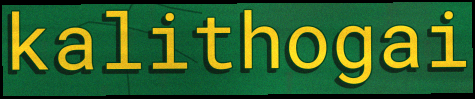
kalithogai